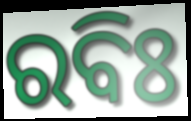
ରବିଃ